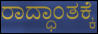
ರಾದ್ಧಾಂತಕ್ಕೆ